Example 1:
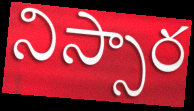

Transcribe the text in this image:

నిస్సార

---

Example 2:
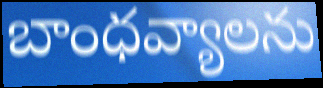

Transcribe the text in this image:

బాంధవ్యాలను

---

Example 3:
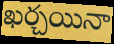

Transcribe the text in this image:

ఖర్చయినా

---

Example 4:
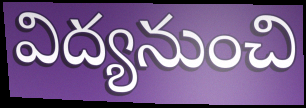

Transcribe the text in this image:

విద్యనుంచి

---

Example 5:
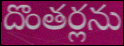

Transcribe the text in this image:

దొంతర్లను